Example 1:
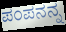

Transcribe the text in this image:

ಪಂಪನನ್ನ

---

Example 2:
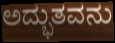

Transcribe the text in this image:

ಅದ್ಭುತವನು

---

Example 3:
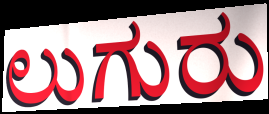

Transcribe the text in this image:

ಲುಗುರು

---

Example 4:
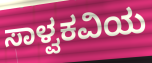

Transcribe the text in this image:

ಸಾಳ್ವಕವಿಯ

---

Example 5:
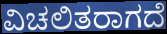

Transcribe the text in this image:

ವಿಚಲಿತರಾಗದೆ